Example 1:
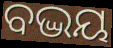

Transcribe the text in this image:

ବଦ୍ଭୟ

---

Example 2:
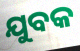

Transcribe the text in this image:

ଯୁବକ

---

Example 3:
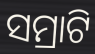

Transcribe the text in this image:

ସମ୍ରାଟି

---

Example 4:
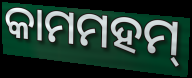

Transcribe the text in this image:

କାମମହମ୍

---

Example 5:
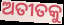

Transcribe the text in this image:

ଅତୀତକୁ